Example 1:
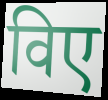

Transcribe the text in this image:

विए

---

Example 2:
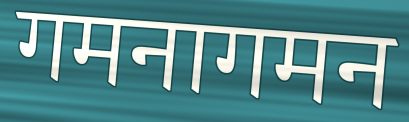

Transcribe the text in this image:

गमनागमन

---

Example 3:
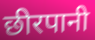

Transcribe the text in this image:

छीरपानी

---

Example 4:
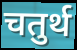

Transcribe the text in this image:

चतुर्थ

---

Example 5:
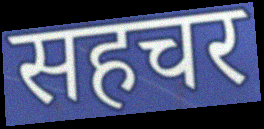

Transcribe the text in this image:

सहचर